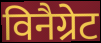
विनैग्रेट